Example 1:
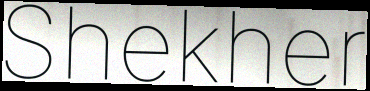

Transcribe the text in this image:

Shekher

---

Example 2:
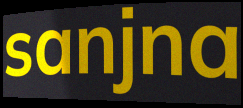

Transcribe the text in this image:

sanjna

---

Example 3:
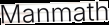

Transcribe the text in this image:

Manmath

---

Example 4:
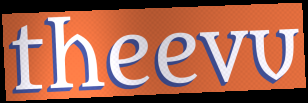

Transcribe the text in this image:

theevu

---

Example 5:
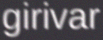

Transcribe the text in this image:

girivar